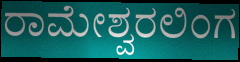
ರಾಮೇಶ್ವರಲಿಂಗ